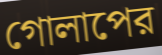
গোলাপের